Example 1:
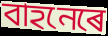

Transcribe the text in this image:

বাহনেৰে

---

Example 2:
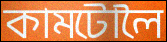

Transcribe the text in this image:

কামটোলৈ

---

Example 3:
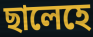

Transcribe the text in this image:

ছালেহে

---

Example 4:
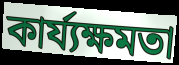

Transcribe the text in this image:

কাৰ্য্যক্ষমতা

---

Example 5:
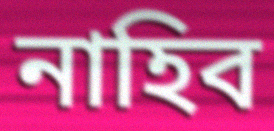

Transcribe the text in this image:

নাহিব